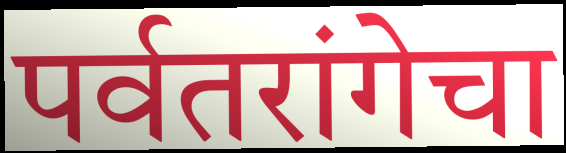
पर्वतरांगेचा